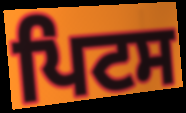
ਪਿਟਸ